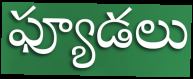
ఫ్యూడలు